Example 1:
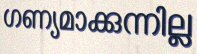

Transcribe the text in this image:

ഗണ്യമാക്കുന്നില്ല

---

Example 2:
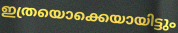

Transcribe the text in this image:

ഇത്രയൊക്കെയായിട്ടും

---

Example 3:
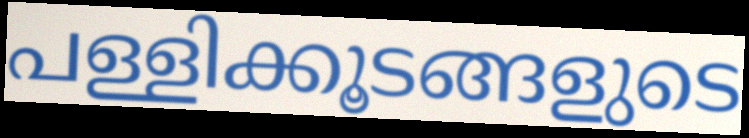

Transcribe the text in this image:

പള്ളിക്കൂടങ്ങളുടെ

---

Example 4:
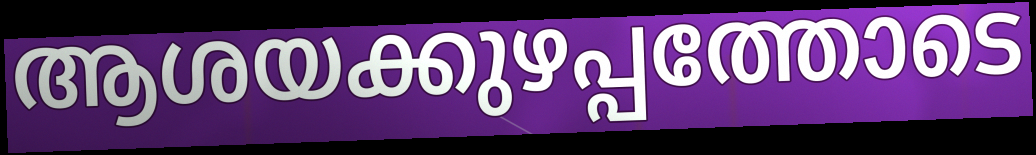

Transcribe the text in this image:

ആശയക്കുഴപ്പത്തോടെ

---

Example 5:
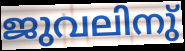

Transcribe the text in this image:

ജുവലിനു്